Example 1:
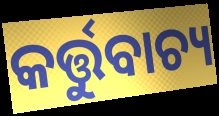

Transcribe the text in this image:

କର୍ତ୍ତୁବାଚ୍ୟ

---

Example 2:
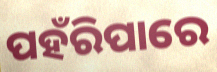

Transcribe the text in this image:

ପହଁରିପାରେ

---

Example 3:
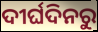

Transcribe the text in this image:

ଦୀର୍ଘଦିନରୁ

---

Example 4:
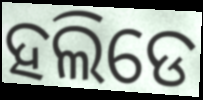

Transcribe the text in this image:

ହଲିଡେ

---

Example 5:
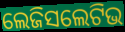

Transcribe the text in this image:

ଲେଜିସଲେଟିଭ